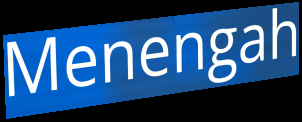
Menengah